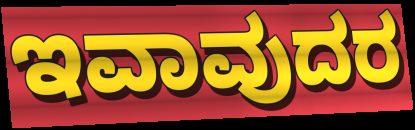
ಇವಾವುದರ